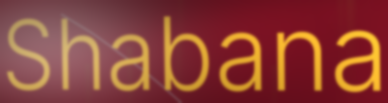
Shabana